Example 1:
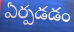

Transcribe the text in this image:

ఏర్పడడం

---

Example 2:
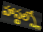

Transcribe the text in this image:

హాస్టల్స్లో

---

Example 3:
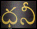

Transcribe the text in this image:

ధనీ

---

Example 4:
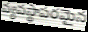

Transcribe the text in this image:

వ్యవస్థాపరమైన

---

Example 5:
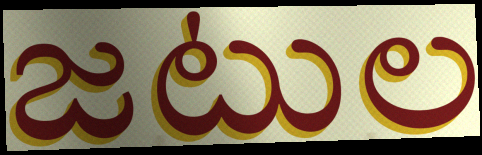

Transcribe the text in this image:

జటుల